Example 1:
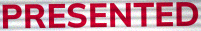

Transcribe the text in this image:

PRESENTED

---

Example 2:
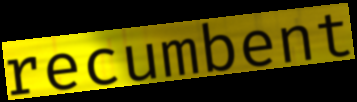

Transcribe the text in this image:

recumbent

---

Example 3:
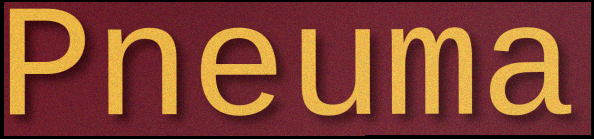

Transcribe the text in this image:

Pneuma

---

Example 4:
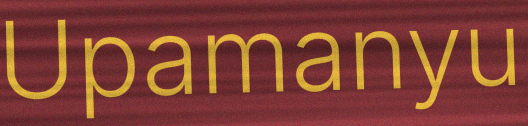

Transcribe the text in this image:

Upamanyu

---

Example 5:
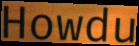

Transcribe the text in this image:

Howdu